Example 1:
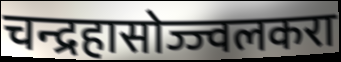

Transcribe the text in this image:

चन्द्रहासोज्ज्वलकरा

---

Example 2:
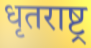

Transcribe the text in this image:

धृतराष्ट्र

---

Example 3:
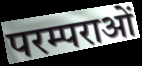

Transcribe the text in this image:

परम्पराओं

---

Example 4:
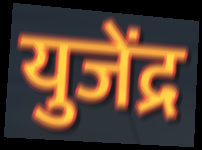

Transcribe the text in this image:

युजेंद्र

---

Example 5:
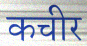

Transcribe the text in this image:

कचीर